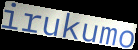
irukumo